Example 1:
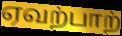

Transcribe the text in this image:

ஏவற்பாற்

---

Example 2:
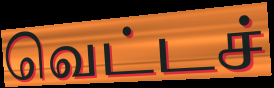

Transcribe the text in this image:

வெட்டச்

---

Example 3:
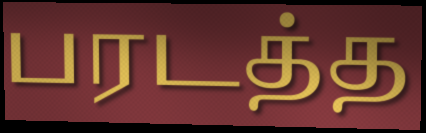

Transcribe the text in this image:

பரடத்த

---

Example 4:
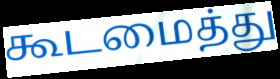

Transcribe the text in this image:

கூடமைத்து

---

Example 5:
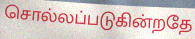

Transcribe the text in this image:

சொல்லப்படுகின்றதே